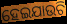
ହେଇଯାଉଚି